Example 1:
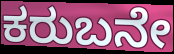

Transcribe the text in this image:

ಕರುಬನೇ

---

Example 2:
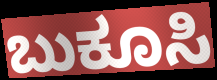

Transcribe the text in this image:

ಬುಕೂಸಿ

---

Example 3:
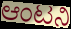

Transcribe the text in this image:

ಆಂಟನಿ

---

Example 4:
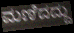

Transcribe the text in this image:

ಮಣಿದದ್ದು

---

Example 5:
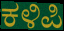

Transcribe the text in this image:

ಕಳಿಪಿ